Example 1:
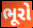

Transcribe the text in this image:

ભૂરો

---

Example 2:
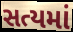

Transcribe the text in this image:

સત્યમાં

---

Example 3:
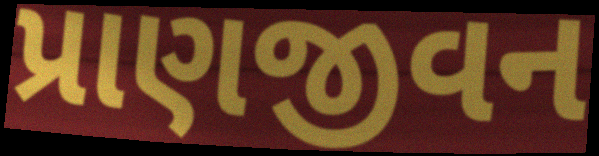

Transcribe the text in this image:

પ્રાણજીવન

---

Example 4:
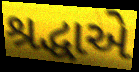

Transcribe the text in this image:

શ્રદ્ધાએ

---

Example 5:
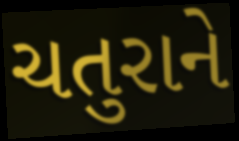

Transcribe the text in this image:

ચતુરાને